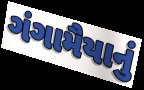
ગંગામૈયાનું